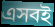
এসবই